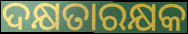
ଦକ୍ଷତାରକ୍ଷକ